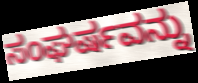
ಸಂಘರ್ಷವನ್ನು